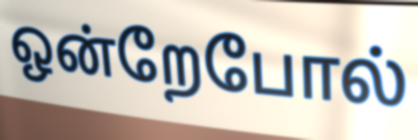
ஒன்றேபோல்